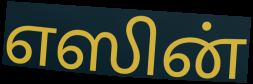
எஸின்